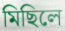
মিছিলে